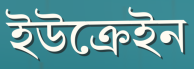
ইউক্ৰেইন